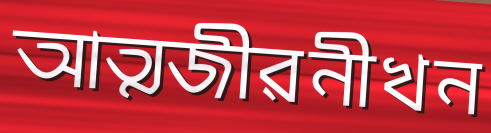
আত্মজীৱনীখন